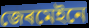
জেৰমেইনে